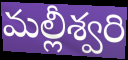
మల్లీశ్వరి